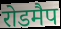
रोडमैप